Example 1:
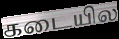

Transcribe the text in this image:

கடையில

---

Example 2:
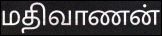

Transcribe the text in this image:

மதிவாணன்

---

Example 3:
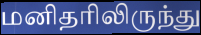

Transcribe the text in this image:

மனிதரிலிருந்து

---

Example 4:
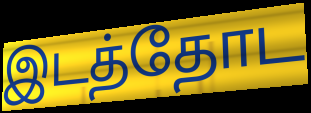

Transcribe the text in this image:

இடத்தோட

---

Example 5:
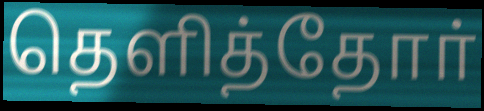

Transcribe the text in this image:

தெளித்தோர்